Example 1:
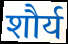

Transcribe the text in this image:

शौर्य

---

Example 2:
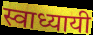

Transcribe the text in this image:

स्वाध्यायी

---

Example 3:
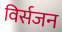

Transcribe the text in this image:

विर्सजन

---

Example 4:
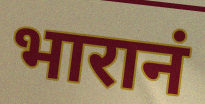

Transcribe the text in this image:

भारानं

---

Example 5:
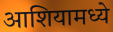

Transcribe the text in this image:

आशियामध्ये